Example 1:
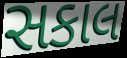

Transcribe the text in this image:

સકાલ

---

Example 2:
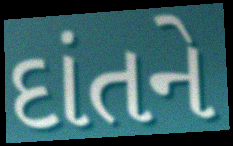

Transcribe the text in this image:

દાંતને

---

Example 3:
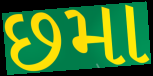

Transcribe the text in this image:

છમા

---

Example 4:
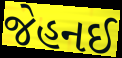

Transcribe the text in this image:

જેહનઈ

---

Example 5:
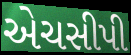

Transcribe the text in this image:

એચસીપી